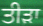
ਤੀੜਾ